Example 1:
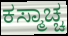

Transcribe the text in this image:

ಕಸ್ಮಾಚ್ಚ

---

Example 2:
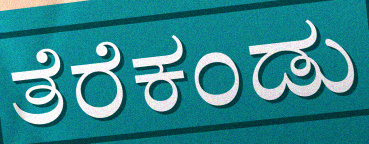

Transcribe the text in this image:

ತೆರೆಕಂಡು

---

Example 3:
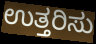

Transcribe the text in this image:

ಉತ್ತರಿಸು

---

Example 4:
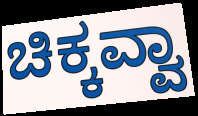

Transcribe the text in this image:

ಚಿಕ್ಕವ್ವಾ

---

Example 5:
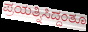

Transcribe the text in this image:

ಪ್ರಯತ್ನಿಸಿದ್ದಂತೂ